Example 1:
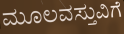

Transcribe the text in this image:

ಮೂಲವಸ್ತುವಿಗೆ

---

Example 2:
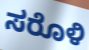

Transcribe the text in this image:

ಸರೊಳಿ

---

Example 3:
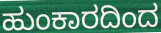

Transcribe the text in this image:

ಹುಂಕಾರದಿಂದ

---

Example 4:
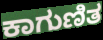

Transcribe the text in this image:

ಕಾಗುಣಿತ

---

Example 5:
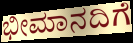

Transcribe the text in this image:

ಭೀಮಾನದಿಗೆ